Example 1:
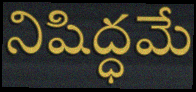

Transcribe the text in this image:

నిషిద్ధమే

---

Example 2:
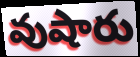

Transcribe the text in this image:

వుషారు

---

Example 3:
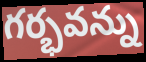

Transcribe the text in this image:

గర్భవన్ను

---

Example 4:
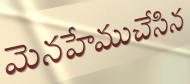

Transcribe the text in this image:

మెనహేముచేసిన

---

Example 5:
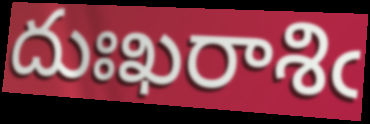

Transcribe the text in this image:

దుఃఖరాశిఁ